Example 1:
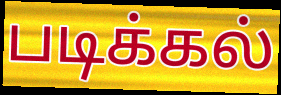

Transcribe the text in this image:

படிக்கல்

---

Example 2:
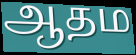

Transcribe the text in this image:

ஆதம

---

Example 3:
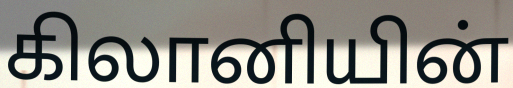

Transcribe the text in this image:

கிலானியின்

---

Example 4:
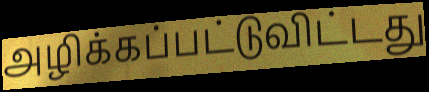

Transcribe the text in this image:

அழிக்கப்பட்டுவிட்டது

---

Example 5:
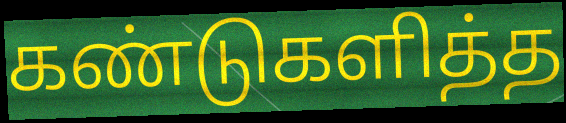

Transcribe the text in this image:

கண்டுகளித்த